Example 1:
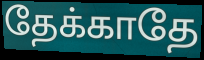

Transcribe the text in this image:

தேக்காதே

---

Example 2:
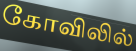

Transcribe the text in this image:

கோவிலில்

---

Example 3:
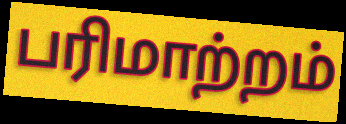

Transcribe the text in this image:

பரிமாற்றம்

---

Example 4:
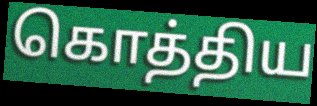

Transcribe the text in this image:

கொத்திய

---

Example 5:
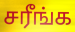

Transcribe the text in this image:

சரீங்க